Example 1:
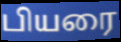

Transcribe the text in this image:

பியரை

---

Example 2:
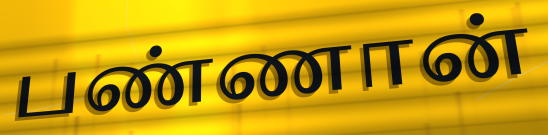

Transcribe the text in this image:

பண்ணான்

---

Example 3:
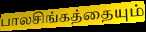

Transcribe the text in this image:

பாலசிங்கத்தையும்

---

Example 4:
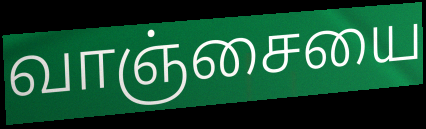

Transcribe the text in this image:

வாஞ்சையை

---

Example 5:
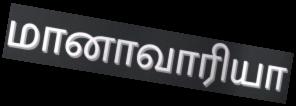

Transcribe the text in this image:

மானாவாரியா